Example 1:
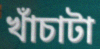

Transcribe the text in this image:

খাঁচাটা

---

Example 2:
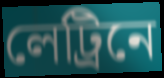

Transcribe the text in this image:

লেট্রিনে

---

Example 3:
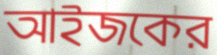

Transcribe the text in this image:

আইজকের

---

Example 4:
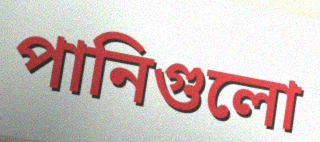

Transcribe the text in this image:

পানিগুলো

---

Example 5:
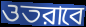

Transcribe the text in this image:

ওতরাবে